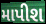
માપીશ